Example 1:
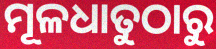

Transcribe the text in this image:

ମୂଳଧାତୁଠାରୁ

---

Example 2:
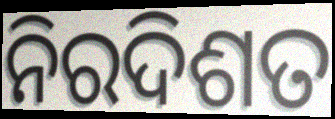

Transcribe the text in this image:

ନିରଦିଶତ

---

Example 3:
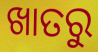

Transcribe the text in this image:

ଖାତରୁ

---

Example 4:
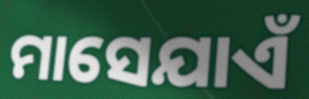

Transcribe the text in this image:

ମାସେଯାଏଁ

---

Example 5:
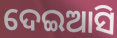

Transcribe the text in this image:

ଦେଇଆସି